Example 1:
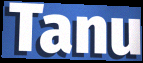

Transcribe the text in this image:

Tanu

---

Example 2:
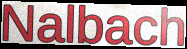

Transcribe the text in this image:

Nalbach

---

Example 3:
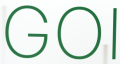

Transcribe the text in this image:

GOI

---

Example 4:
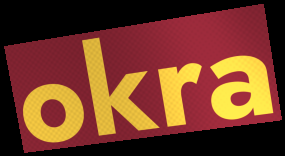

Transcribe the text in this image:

okra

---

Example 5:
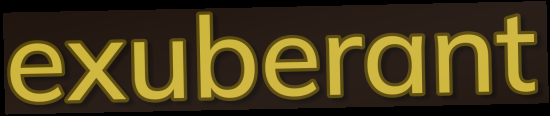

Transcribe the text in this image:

exuberant